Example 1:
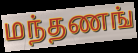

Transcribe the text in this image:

மந்தணங்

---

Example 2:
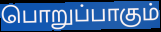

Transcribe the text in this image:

பொறுப்பாகும்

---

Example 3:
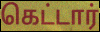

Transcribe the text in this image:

கெட்டார்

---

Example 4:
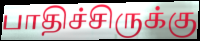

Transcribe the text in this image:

பாதிச்சிருக்கு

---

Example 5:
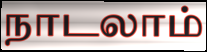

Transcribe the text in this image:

நாடலாம்